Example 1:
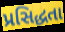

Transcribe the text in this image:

પ્રસિદ્ધતા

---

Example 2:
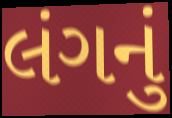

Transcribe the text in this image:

લંગનું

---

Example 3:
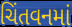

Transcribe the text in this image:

ચિંતવનમાં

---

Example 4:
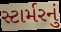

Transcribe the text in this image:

સ્ટાર્મરનું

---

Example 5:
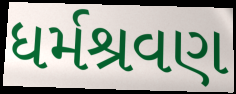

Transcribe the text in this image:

ધર્મશ્રવણ